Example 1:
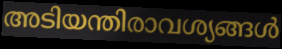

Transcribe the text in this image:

അടിയന്തിരാവശ്യങ്ങൾ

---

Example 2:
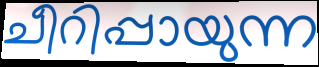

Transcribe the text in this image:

ചീറിപ്പായുന്ന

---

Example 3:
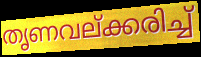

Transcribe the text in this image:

തൃണവല്ക്കരിച്ച്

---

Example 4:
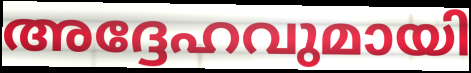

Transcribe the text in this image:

അദ്ദേഹവുമായി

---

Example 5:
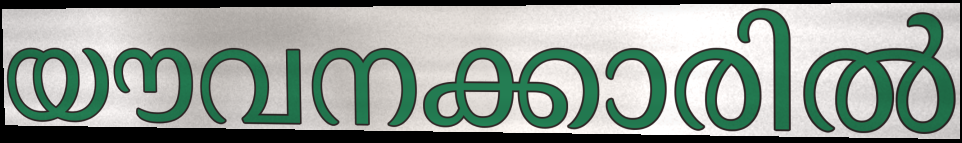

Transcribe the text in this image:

യൗവനക്കാരിൽ